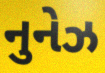
નુનેઝ